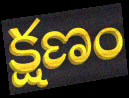
క్షణం